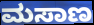
ಮಸಾಣ